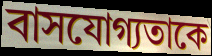
বাসযোগ্যতাকে